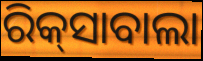
ରିକ୍‌ସାବାଲା